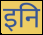
इनि